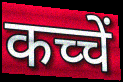
कच्चें